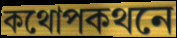
কথোপকথনে